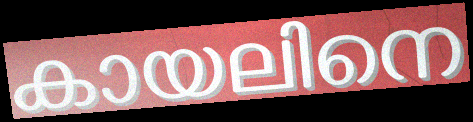
കായലിനെ